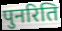
पुनरिति